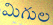
మిగుల